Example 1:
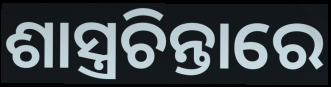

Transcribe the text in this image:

ଶାସ୍ତ୍ରଚିନ୍ତାରେ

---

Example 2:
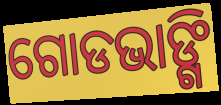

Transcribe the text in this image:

ଗୋଡଭାଙ୍ଗି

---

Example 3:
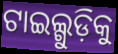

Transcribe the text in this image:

ଟାଇଲ୍ଗୁଡ଼ିକୁ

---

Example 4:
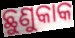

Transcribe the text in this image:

ଛୁଣୁକାକ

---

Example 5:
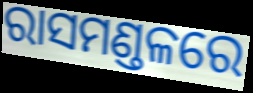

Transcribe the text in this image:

ରାସମଣ୍ଡଳରେ